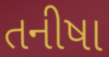
તનીષા